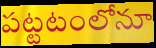
పట్టటంలోనూ